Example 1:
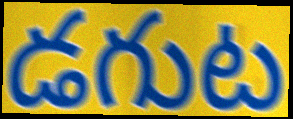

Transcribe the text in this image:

డగుట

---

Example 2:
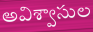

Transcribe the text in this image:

అవిశ్వాసుల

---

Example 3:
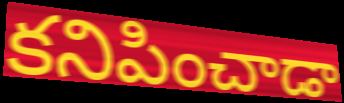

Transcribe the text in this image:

కనిపించాడా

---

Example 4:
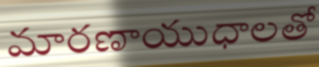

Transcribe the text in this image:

మారణాయుధాలతో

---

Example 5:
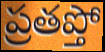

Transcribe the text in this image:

ప్రతప్తో